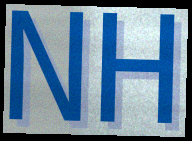
NH